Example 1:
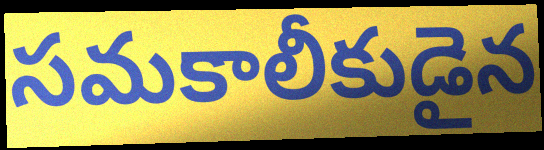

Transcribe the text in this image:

సమకాలీకుడైన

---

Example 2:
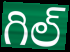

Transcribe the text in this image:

గిల్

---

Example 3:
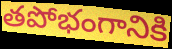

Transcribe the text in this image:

తపోభంగానికి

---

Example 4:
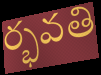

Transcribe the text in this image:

ర్భవతి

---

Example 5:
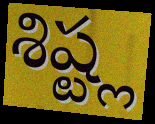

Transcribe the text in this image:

శిష్ట్ల